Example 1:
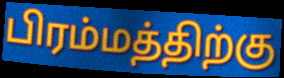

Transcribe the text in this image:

பிரம்மத்திற்கு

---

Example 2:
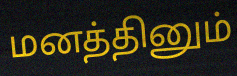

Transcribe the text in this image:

மனத்தினும்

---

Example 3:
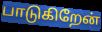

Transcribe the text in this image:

பாடுகிறேன்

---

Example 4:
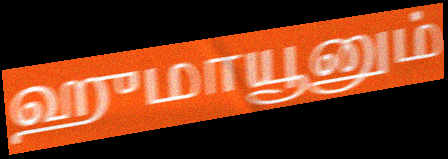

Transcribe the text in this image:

ஹுமாயூனும்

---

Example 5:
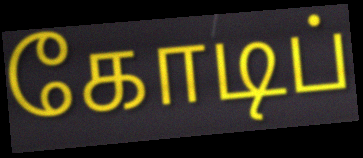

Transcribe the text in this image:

கோடிப்